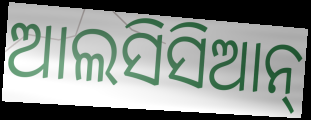
ଆଲସିସିଆନ୍